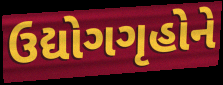
ઉદ્યોગગૃહોને